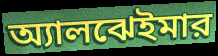
অ্যালঝেইমার